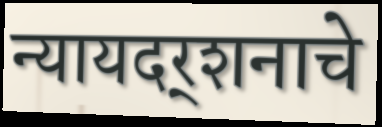
न्यायदर्शनाचे